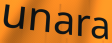
unara